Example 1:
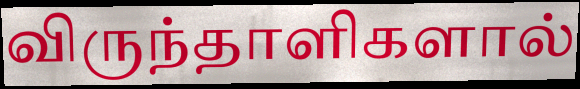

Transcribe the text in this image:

விருந்தாளிகளால்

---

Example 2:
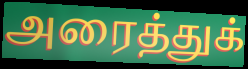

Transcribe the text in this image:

அரைத்துக்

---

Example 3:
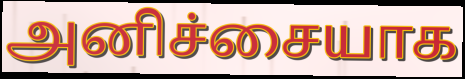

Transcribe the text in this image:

அனிச்சையாக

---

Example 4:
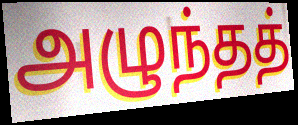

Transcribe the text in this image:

அழுந்தத்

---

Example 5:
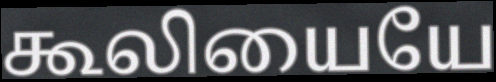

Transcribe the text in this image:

கூலியையே